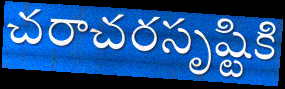
చరాచరసృష్టికి